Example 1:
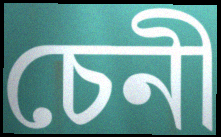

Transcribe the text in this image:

চেনী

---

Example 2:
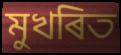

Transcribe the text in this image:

মুখৰিত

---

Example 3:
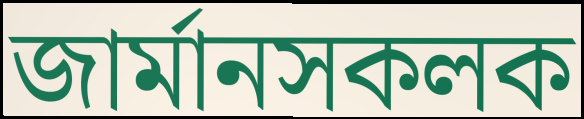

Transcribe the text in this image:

জাৰ্মানসকলক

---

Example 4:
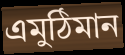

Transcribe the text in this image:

এমুঠিমান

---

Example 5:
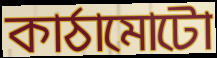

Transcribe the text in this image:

কাঠামোটো